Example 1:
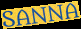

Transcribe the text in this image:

SANNA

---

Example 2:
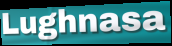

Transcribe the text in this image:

Lughnasa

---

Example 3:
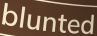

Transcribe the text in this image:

blunted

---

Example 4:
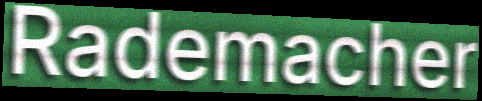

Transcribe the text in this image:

Rademacher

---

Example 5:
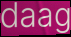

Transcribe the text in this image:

daag